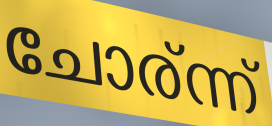
ചോര്ന്ന്